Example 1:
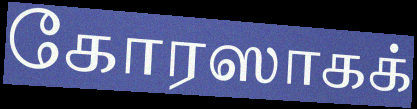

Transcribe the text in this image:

கோரஸாகக்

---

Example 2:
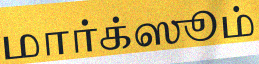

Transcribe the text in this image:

மார்க்ஸூம்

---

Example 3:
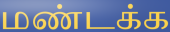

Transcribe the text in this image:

மண்டக்க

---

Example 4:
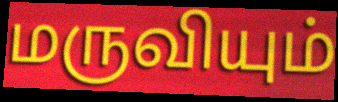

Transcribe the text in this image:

மருவியும்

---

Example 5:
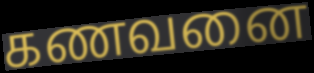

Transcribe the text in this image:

கணவனை